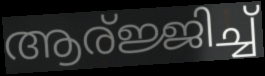
ആര്ജ്ജിച്ച്